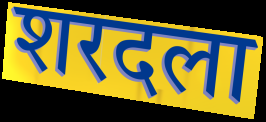
शरदला